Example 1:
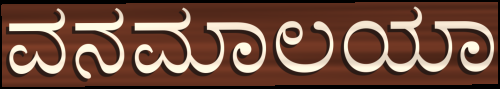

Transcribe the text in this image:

ವನಮಾಲಯಾ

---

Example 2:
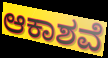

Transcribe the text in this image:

ಆಕಾಶವೆ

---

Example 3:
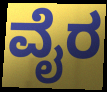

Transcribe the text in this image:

ವೈರ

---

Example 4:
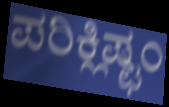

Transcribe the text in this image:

ಪರಿಕ್ಲಿಷ್ಟಂ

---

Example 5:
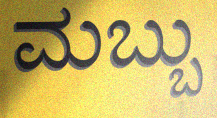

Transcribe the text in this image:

ಮಬ್ಬು